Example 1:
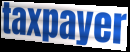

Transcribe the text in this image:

taxpayer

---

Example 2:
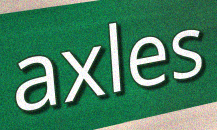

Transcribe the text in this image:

axles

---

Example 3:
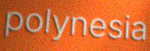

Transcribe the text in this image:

polynesia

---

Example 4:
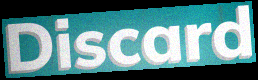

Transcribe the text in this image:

Discard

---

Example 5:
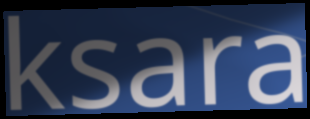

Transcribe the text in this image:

ksara